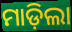
ମାଡ଼ିଲା